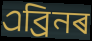
এব্ৰিনৰ